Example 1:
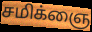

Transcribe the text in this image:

சமிக்ஞை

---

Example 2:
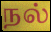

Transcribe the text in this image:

நல்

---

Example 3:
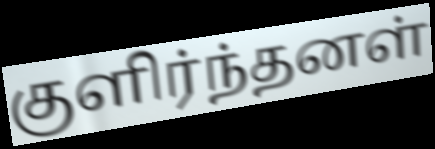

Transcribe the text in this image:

குளிர்ந்தனள்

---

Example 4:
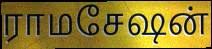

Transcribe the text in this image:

ராமசேஷன்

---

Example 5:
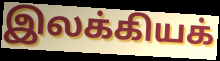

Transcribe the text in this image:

இலக்கியக்